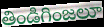
తిండిగింజలూ